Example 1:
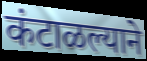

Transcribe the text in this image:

कंटाळल्याने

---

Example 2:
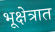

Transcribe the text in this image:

भूक्षेत्रात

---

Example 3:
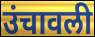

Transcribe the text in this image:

उंचावली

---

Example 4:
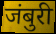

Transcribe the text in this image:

जंबुरी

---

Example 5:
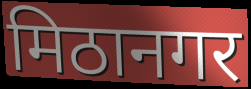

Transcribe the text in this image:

मिठानगर